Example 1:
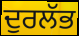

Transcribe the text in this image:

ਦੁਰਲੱਭ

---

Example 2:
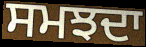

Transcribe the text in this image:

ਸਮਝਦਾ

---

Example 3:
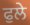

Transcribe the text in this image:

ਫੁਲੇ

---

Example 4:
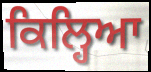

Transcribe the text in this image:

ਕਿਲ੍ਹਿਆ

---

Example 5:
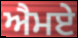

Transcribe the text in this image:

ਐਮਏ